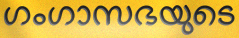
ഗംഗാസഭയുടെ